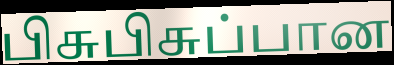
பிசுபிசுப்பான